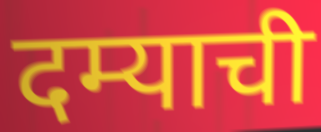
दम्याची